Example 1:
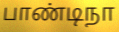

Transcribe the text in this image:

பாண்டிநா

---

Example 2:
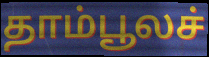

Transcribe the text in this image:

தாம்பூலச்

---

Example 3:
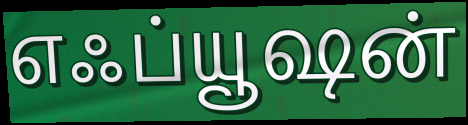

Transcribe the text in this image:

எஃப்யூஷன்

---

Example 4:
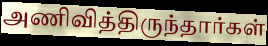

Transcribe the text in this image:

அணிவித்திருந்தார்கள்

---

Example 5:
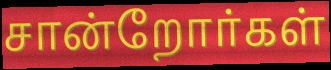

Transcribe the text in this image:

சான்றோர்கள்